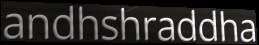
andhshraddha